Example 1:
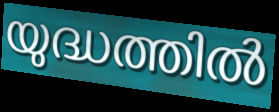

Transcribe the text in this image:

യുദ്ധത്തിൽ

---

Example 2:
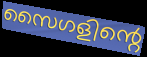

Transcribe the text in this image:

സൈഗളിന്റെ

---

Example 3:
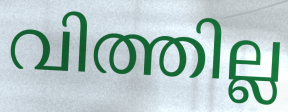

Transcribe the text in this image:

വിത്തില്ല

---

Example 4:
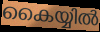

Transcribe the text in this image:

കൈയ്യിൽ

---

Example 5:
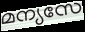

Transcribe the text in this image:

മന്യസേ